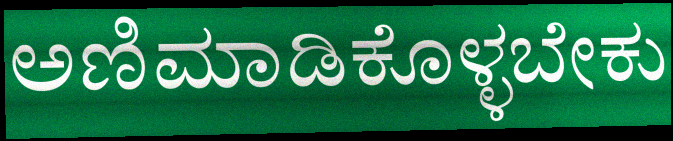
ಅಣಿಮಾಡಿಕೊಳ್ಳಬೇಕು